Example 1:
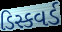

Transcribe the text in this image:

ડિસ્કવર્ડ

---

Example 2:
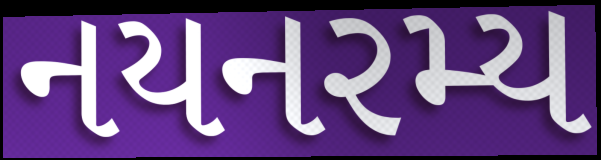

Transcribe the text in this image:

નયનરમ્ય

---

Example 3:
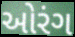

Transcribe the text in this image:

ઓરંગ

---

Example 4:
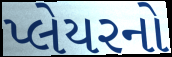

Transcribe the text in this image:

પ્લેયરનો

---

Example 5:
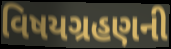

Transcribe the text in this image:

વિષયગ્રહણની